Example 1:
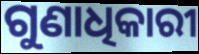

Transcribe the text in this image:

ଗୁଣାଧିକାରୀ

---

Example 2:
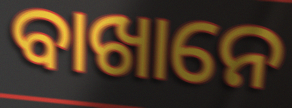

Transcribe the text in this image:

ବାଖାନେ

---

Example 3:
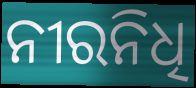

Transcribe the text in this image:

ନୀରନିଧି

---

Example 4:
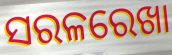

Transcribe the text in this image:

ସରଳରେଖା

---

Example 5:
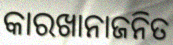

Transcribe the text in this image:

କାରଖାନାଜନିତ